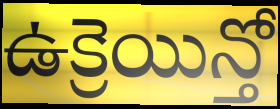
ఉక్రెయిన్తో